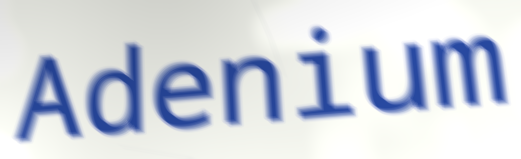
Adenium